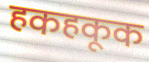
हकहकूक